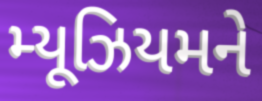
મ્યૂઝિયમને